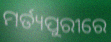
ମର୍ତ୍ୟପୁରୀରେ